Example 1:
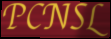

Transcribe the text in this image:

PCNSL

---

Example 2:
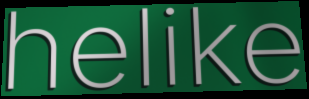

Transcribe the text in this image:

helike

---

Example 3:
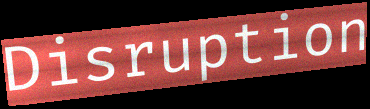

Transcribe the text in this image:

Disruption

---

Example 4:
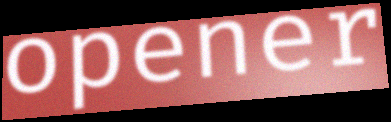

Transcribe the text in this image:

opener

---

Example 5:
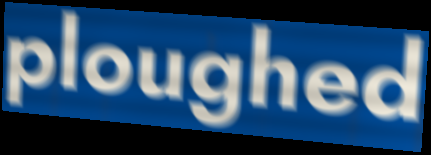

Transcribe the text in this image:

ploughed